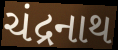
ચંદ્રનાથ